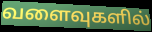
வளைவுகளில்